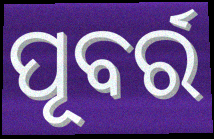
ପୂବର୍ର